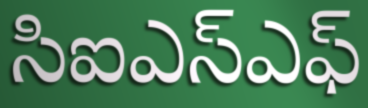
సిఐఎస్ఎఫ్